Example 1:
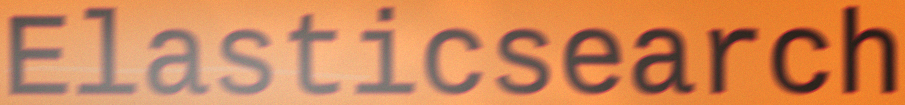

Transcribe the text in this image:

Elasticsearch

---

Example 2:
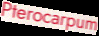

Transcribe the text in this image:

Pterocarpum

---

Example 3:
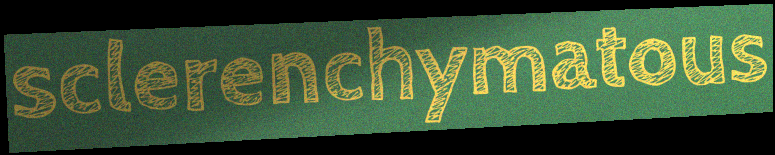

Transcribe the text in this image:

sclerenchymatous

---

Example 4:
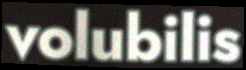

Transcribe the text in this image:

volubilis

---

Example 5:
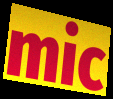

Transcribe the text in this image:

mic